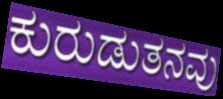
ಕುರುಡುತನವು